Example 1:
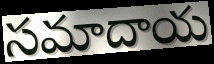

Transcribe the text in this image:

సమాదాయ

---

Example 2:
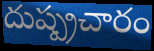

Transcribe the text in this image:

దుష్ప్రచారం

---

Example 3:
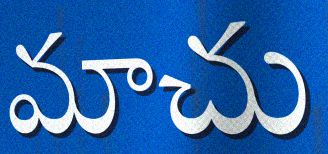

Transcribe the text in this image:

మాచు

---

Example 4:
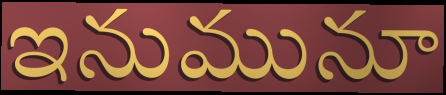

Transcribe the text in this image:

ఇనుమునూ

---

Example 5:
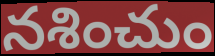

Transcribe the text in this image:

నశించుం